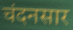
चंदनसार